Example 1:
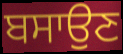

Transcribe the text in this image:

ਬਸਾਉਣ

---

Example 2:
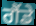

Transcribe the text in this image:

ਗੈਂਡੇ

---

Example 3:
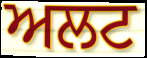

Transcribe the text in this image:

ਅਲਟ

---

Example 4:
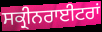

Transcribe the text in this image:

ਸਕ੍ਰੀਨਰਾਈਟਰਾਂ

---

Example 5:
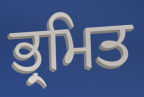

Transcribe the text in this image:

ਭ੍ਰਮਿਤ